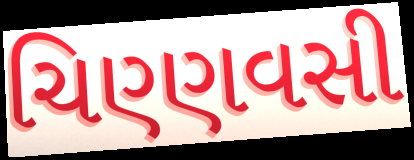
ચિણ્ણવસી